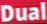
Dual